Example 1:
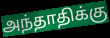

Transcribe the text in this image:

அந்தாதிக்கு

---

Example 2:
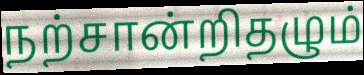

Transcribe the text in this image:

நற்சான்றிதழும்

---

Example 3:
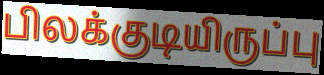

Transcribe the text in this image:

பிலக்குடியிருப்பு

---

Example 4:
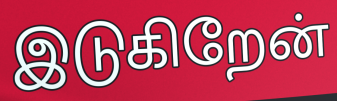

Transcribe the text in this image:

இடுகிறேன்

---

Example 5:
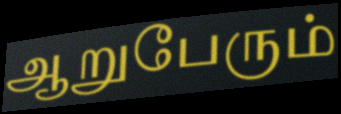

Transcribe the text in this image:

ஆறுபேரும்